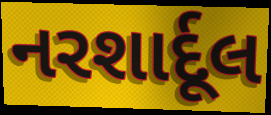
નરશાર્દૂલ